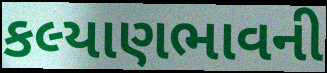
કલ્યાણભાવની